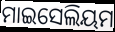
ମାଇସେଲିୟମ